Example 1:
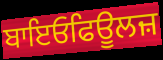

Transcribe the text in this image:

ਬਾਇਓਫਿਊਲਜ਼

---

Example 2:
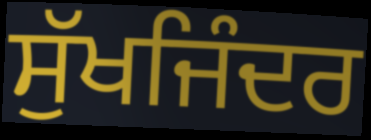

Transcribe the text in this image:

ਸੁੱਖਜਿੰਦਰ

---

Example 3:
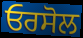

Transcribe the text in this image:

ਓਰਸੋਲ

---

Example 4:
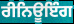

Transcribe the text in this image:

ਰੀਨਿਊਇੰਗ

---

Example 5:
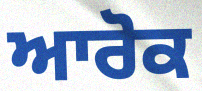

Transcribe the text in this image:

ਆਰੋਕ